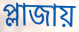
প্লাজায়